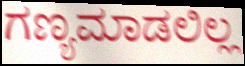
ಗಣ್ಯಮಾಡಲಿಲ್ಲ